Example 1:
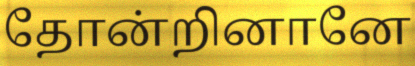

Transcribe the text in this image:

தோன்றினானே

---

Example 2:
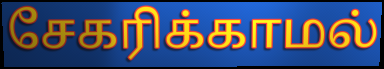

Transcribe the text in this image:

சேகரிக்காமல்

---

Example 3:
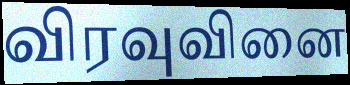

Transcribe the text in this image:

விரவுவினை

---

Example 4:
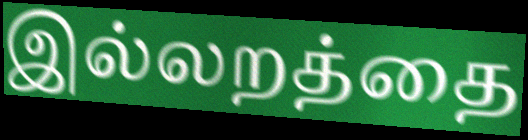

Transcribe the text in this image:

இல்லறத்தை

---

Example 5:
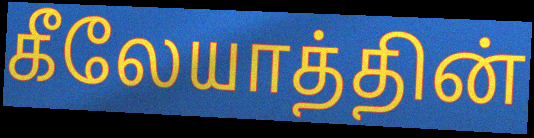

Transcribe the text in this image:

கீலேயாத்தின்